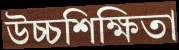
উচ্চশিক্ষিতা